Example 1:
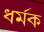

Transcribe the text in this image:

ধৰ্মক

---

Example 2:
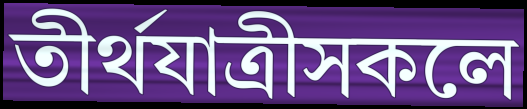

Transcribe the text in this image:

তীৰ্থযাত্ৰীসকলে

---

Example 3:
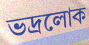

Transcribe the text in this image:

ভদ্ৰলোক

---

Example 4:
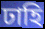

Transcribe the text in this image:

ঢাহি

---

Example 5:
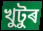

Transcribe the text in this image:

খুটুৰ